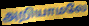
அறியாமலே